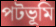
পটভূমি